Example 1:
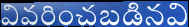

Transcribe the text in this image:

వివరించబడినవి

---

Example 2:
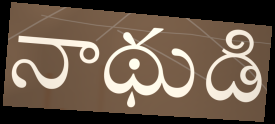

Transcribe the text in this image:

నాథుడి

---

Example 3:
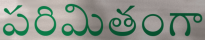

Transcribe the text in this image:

పరిమితంగా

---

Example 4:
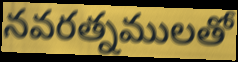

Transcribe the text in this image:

నవరత్నములతో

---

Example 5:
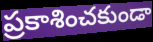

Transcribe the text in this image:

ప్రకాశించకుండా